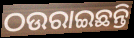
ଠଉରାଇଛନ୍ତି